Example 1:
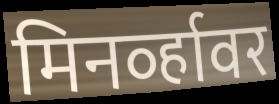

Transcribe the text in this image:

मिनर्व्हावर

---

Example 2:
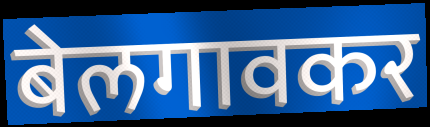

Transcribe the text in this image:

बेलगावकर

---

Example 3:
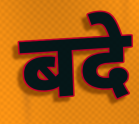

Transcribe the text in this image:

बदे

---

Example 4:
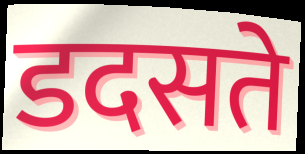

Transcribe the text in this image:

डदसते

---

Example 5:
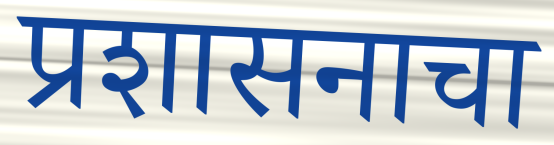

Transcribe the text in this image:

प्रशासनाचा